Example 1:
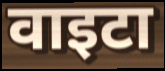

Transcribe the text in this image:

वाइटा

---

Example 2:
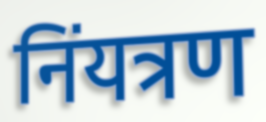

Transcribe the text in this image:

निंयत्रण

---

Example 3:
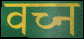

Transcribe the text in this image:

वच्न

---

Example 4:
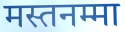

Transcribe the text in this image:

मस्तनम्मा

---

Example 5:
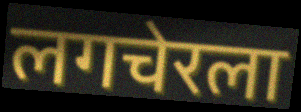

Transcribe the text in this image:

लगचेरला